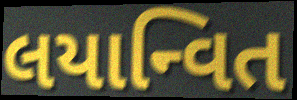
લયાન્વિત